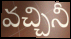
వచ్చినీ